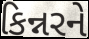
કિન્નરને